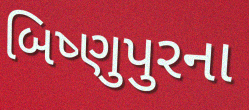
બિષ્ણુપુરના